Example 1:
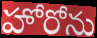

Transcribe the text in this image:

హోరోను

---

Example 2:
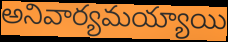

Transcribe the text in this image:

అనివార్యమయ్యాయి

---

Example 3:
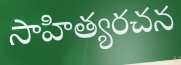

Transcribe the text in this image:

సాహిత్యరచన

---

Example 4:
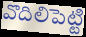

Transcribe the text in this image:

వొదిలిపెట్టి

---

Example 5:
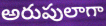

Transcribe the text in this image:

అరుపులాగా